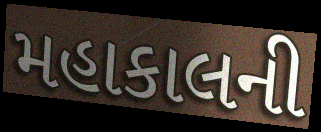
મહાકાલની